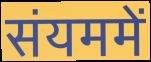
संयममें